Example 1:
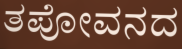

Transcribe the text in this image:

ತಪೋವನದ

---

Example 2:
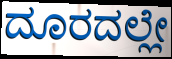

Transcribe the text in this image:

ದೂರದಲ್ಲೇ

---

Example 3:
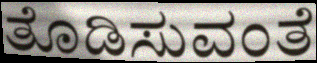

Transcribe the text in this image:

ತೊಡಿಸುವಂತೆ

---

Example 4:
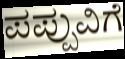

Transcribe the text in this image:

ಪಪ್ಪುವಿಗೆ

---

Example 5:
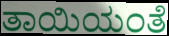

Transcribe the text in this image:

ತಾಯಿಯಂತೆ